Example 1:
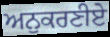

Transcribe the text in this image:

ਅਨੁਕਰਣੀਏ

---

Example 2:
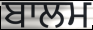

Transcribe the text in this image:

ਬਾਲਮ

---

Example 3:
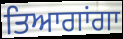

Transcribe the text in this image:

ਤਿਆਗਾਂਗਾ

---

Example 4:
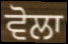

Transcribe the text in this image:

ਵੋਲਾ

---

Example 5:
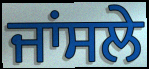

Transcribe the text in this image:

ਜਾਂਸਲੇ